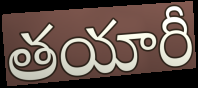
తయారీ